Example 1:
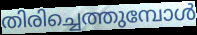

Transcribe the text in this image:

തിരിച്ചെത്തുമ്പോൾ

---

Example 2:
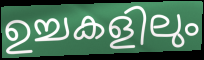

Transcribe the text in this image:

ഉച്ചകളിലും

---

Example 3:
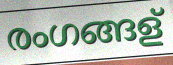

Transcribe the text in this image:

രംഗങ്ങള്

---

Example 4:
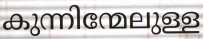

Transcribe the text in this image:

കുന്നിന്മേലുള്ള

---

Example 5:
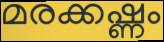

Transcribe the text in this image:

മരക്കഷ്ണം